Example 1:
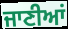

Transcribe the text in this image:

ਜਾਣੀਆਂ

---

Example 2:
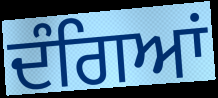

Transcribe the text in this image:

ਦੰਗਿਆਂ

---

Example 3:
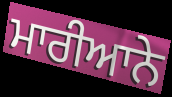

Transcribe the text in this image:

ਮਾਰੀਆਨੇ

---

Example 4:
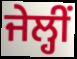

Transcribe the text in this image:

ਜੇਲ੍ਹੀਂ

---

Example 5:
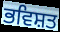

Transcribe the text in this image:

ਭਵਿਸ਼ਤ